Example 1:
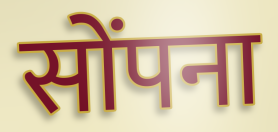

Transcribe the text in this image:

सोंपना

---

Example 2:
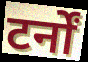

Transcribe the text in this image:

टर्नों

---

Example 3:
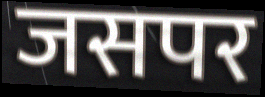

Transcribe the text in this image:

जसपर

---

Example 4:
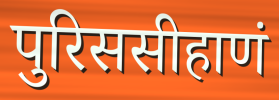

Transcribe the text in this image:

पुरिससीहाणं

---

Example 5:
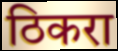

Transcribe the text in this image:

ठिकरा